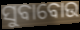
ସୁବାବୋଉ